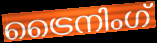
ട്രൈനിംഗ്